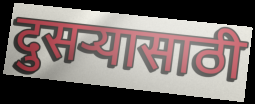
दुसऱ्यासाठी